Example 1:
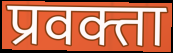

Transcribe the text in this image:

प्रवक्ता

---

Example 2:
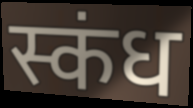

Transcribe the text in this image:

स्कंध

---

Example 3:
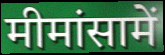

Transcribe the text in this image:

मीमांसामें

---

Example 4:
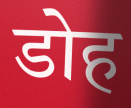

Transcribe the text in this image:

डोह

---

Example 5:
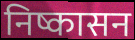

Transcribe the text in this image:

निष्कासन